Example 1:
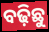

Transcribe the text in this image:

ବଢ଼ିଛୁ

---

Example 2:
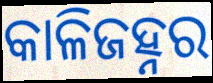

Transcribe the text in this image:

କାଳିଜହ୍ନର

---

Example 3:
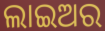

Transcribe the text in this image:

ଲାଇଅର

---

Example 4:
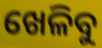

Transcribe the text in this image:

ଖେଳିବୁ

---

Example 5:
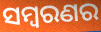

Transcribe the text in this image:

ସମ୍ବରଣର